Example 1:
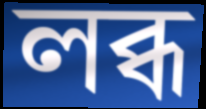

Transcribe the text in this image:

লব্ধ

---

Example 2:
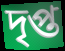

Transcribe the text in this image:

দৃপ্ত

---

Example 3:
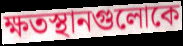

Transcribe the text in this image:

ক্ষতস্থানগুলোকে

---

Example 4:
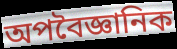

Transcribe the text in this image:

অপবৈজ্ঞানিক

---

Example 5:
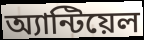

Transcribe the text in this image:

অ্যান্টিয়েল